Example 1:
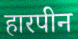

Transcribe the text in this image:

हारपीन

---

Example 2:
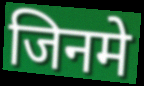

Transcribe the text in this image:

जिनमे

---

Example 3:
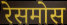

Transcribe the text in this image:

रेसमोस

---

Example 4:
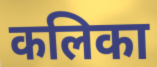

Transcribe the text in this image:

कलिका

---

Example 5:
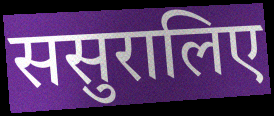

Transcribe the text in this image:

ससुरालिए